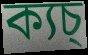
ক্যচ্